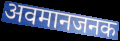
अवमानजनक